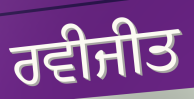
ਰਵੀਜੀਤ